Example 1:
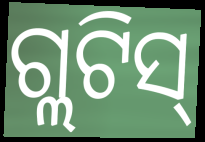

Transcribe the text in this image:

ଗ୍ଲଟିସ୍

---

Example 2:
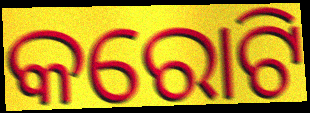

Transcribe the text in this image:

କରୋଟି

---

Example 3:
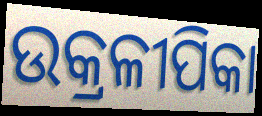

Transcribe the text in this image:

ଉକ୍ରଳୀପିକା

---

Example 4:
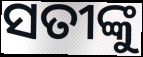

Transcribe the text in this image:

ସତୀଙ୍କୁ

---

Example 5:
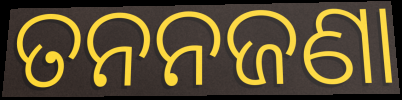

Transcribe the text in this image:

ତନନଜଣା